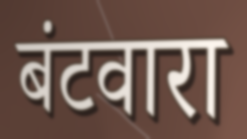
बंटवारा